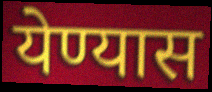
येण्यास